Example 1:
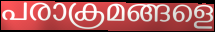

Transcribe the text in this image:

പരാക്രമങ്ങളെ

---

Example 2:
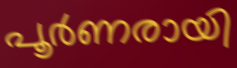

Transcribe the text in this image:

പൂർണരായി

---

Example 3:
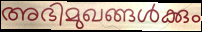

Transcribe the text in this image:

അഭിമുഖങ്ങൾക്കും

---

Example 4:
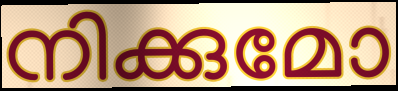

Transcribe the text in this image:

നിക്കുമോ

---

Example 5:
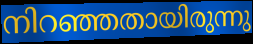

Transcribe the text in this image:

നിറഞ്ഞതായിരുന്നു